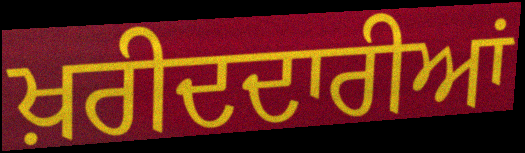
ਖ਼ਰੀਦਦਾਰੀਆਂ